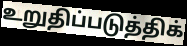
உறுதிப்படுத்திக்